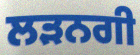
ਲੜਨਗੀ